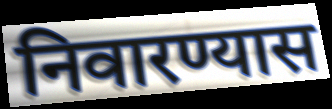
निवारण्यास